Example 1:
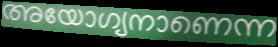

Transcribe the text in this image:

അയോഗ്യനാണെന്ന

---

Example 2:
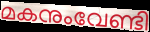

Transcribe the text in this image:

മകനുംവേണ്ടി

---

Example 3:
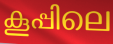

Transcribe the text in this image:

കൂപ്പിലെ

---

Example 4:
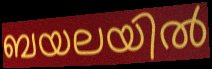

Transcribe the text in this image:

ബയലയിൽ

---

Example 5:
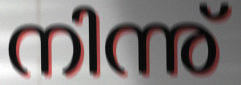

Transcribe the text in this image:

നിന്നു്